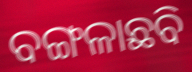
ବଙ୍ଗଳାଛବି